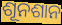
ଶୂନଶାନ